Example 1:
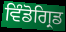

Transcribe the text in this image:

ਵਿੰਡੋਗ੍ਰਿਡ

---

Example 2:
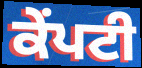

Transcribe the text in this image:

ਕੇਂਪਟੀ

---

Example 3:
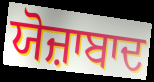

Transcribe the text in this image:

ਯੋਜ਼ਾਬਾਦ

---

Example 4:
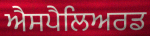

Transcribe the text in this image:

ਐਸਪੈਲਿਅਰਡ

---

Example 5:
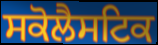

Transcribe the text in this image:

ਸਕੋਲੈਸਟਿਕ